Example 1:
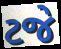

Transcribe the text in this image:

ટજે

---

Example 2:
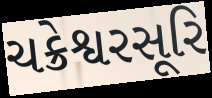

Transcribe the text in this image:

ચક્રેશ્વરસૂરિ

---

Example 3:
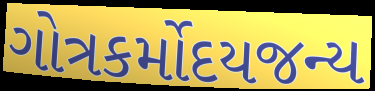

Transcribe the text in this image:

ગોત્રકર્મોદયજન્ય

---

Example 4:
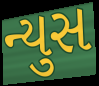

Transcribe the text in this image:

ન્યુસ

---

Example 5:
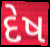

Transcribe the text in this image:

દેષ